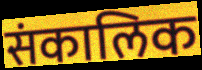
संकालिक